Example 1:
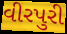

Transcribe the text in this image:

વીરપુરી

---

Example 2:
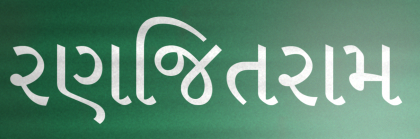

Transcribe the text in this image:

રણજિતરામ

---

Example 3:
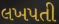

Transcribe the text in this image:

લખપતી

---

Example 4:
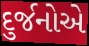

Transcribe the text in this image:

દુર્જનોએ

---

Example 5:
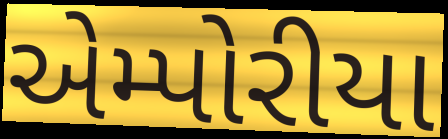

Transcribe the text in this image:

એમ્પોરીયા